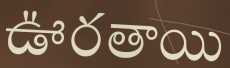
ఊరతాయి